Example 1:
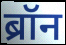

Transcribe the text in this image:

ब्रॉन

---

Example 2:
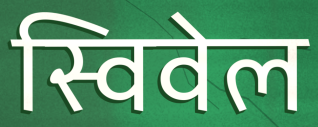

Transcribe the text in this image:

स्विवेल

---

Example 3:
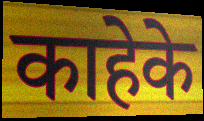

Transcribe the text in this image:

काहेके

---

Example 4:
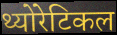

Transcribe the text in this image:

थ्योरेटिकल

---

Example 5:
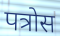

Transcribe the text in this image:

पत्रोस